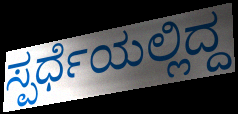
ಸ್ಪರ್ಧೆಯಲ್ಲಿದ್ದ